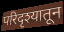
परिदृश्यातून